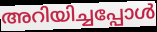
അറിയിച്ചപ്പോൾ